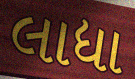
લાદ્યા